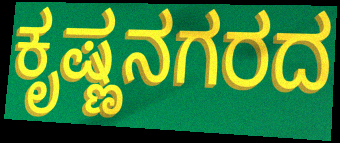
ಕೃಷ್ಣನಗರದ